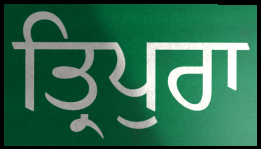
ਤ੍ਰਿਪੁਰਾ